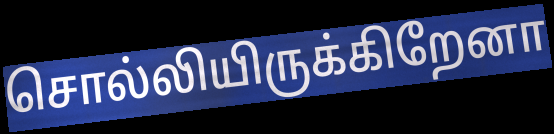
சொல்லியிருக்கிறேனா